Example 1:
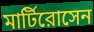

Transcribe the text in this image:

মার্টিরোসেন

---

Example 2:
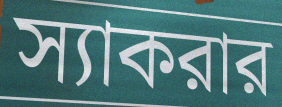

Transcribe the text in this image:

স্যাকরার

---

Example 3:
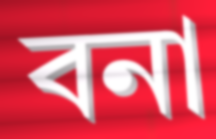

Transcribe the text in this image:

বনা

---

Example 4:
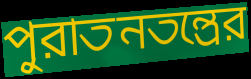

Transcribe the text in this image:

পুরাতনতন্ত্রের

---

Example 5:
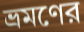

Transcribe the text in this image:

ভ্রমণের